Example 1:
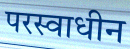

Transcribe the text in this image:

परस्वाधीन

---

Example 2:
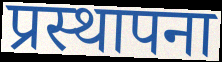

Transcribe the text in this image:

प्रस्थापना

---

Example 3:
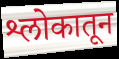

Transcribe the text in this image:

श्लोकातून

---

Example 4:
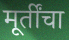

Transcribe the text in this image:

मूर्तींचा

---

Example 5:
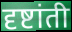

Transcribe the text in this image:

दृष्टांती